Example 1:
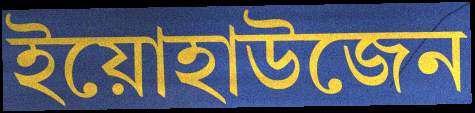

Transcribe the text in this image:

ইয়োহাউজেন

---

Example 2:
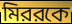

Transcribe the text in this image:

মিররকে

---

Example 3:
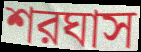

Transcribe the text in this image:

শরঘাস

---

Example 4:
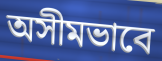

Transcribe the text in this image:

অসীমভাবে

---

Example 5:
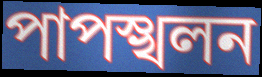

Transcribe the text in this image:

পাপস্খলন